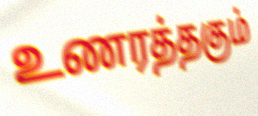
உணரத்தகும்